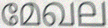
മേഖല